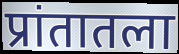
प्रांतातला